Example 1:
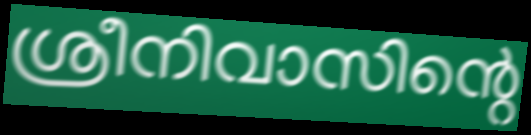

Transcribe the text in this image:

ശ്രീനിവാസിന്റെ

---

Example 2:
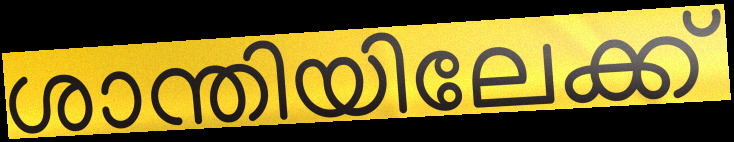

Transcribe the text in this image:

ശാന്തിയിലേക്ക്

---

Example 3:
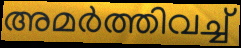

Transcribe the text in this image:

അമർത്തിവച്ച്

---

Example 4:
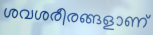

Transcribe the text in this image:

ശവശരീരങ്ങളാണ്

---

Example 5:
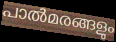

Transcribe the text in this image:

പാൽമരങ്ങളും